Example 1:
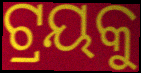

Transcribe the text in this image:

ଟ୍ରୟକୁ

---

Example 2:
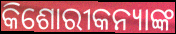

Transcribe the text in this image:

କିଶୋରୀକନ୍ୟାଙ୍କ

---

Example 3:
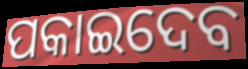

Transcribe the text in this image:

ପକାଇଦେବ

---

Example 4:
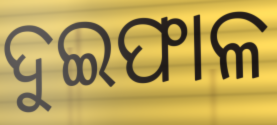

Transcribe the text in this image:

ଦୁଇଫାଳ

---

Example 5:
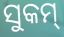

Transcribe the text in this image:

ସୁକମ୍